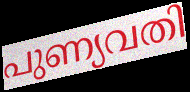
പുണ്യവതി